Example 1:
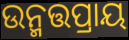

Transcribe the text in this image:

ଉନ୍ମତ୍ତପ୍ରାୟ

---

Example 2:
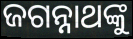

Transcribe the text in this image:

ଜଗନ୍ନାଥଙ୍କୁ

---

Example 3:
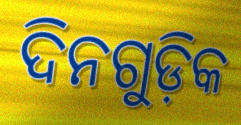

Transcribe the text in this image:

ଦିନଗୁଡ଼ିକ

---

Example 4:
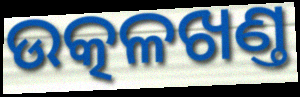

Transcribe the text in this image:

ଉତ୍କଳଖଣ୍ତ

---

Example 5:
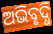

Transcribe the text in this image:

ଅଭିବୃଦ୍ଧି